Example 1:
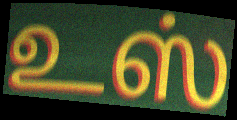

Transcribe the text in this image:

உஸ்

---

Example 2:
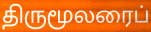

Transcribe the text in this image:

திருமூலரைப்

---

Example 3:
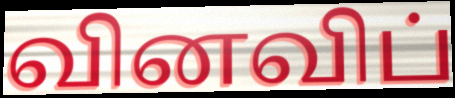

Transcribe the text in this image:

வினவிப்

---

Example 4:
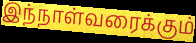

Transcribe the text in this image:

இந்நாள்வரைக்கும்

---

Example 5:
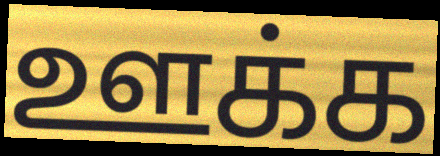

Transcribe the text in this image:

ஊக்க